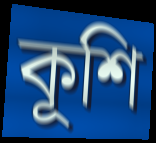
কূশি